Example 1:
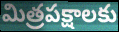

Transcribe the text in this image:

మిత్రపక్షాలకు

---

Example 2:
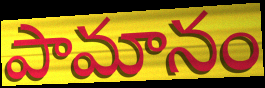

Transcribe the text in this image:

పామానం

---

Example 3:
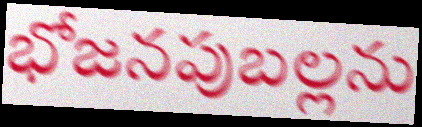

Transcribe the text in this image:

భోజనపుబల్లను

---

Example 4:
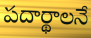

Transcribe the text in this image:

పదార్థాలనే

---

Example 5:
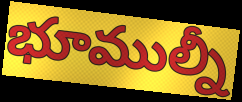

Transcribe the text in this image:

భూముల్నీ